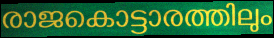
രാജകൊട്ടാരത്തിലും